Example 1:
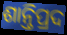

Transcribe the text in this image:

ଶାନ୍ତିପ୍ରଦ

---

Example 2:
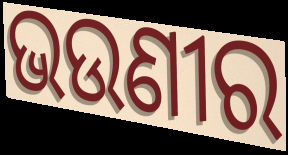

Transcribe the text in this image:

ଭଉଣୀର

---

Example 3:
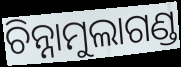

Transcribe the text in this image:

ଚିନ୍ନାମୁଲାଗଣ୍ଡ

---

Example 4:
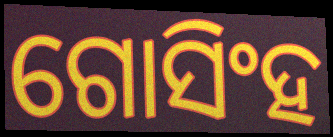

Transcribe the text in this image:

ଗୋସିଂହ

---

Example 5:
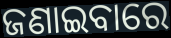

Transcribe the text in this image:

ଜଣାଇବାରେ